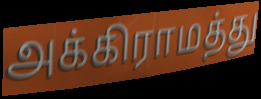
அக்கிராமத்து